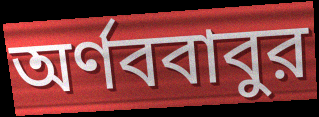
অর্ণববাবুর